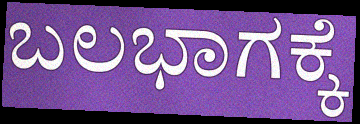
ಬಲಭಾಗಕ್ಕೆ